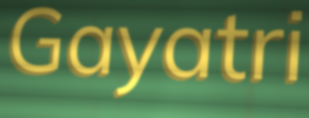
Gayatri